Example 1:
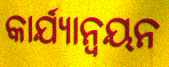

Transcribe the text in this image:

କାର୍ଯ୍ୟାନ୍ୱୟନ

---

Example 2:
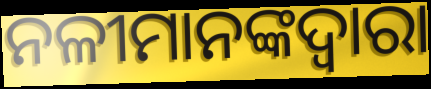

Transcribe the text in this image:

ନଳୀମାନଙ୍କଦ୍ୱାରା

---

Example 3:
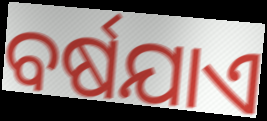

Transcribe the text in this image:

ବର୍ଷଯାଏ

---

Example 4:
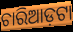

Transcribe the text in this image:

ଚାରିଆଡ଼ଟା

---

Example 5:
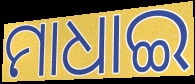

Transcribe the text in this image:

ମାଧାଇ